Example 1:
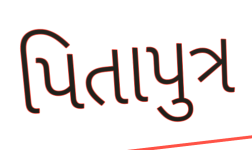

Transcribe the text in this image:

પિતાપુત્ર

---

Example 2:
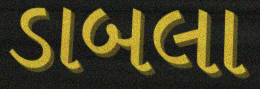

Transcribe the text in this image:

ડાબલા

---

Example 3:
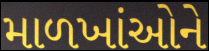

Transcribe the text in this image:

માળખાંઓને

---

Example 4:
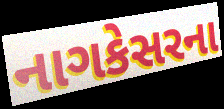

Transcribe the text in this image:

નાગકેસરના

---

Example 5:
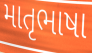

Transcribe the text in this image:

માતૃભાષા